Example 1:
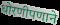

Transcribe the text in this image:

धोरणीपणाने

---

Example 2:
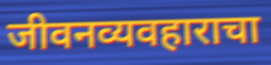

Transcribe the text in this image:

जीवनव्यवहाराचा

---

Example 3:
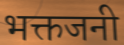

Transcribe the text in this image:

भक्तजनी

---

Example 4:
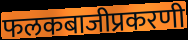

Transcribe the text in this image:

फलकबाजीप्रकरणी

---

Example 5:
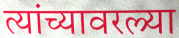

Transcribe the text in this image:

त्यांच्यावरल्या